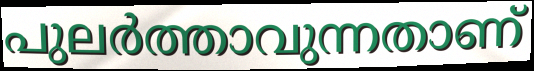
പുലർത്താവുന്നതാണ്